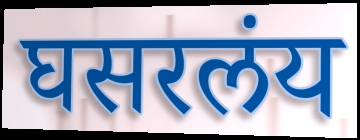
घसरलंय